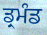
ਡ੍ਰਮੰਡ